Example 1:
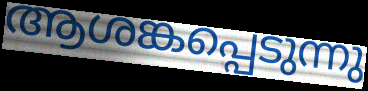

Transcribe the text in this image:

ആശങ്കപ്പെടുന്നു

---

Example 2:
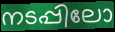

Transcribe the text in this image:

നടപ്പിലോ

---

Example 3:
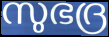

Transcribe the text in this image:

സുഭദ്ര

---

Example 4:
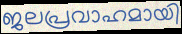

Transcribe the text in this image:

ജലപ്രവാഹമായി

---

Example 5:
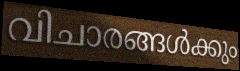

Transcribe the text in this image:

വിചാരങ്ങൾക്കും